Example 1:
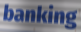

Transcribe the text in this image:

banking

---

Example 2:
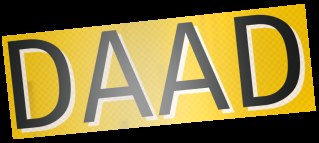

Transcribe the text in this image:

DAAD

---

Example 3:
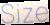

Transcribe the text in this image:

Size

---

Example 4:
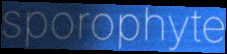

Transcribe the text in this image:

sporophyte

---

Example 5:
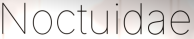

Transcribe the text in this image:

Noctuidae